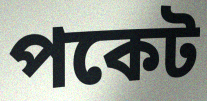
পকেট